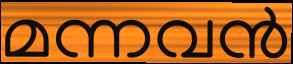
മന്നവൻ